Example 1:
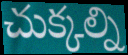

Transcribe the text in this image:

చుక్కల్ని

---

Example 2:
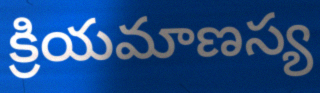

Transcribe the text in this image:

క్రియమాణస్య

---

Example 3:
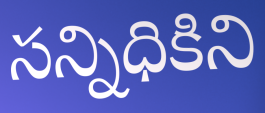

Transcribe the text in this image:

సన్నిధికిని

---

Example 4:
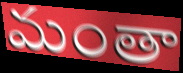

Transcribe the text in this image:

మంతా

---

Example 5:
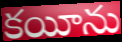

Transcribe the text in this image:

కయీను